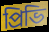
প্রিভি